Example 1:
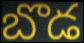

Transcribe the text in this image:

బొడ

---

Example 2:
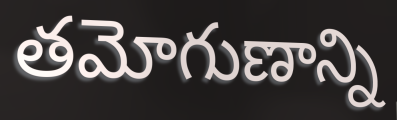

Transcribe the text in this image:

తమోగుణాన్ని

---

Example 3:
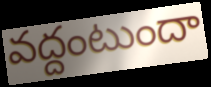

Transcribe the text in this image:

వద్దంటుందా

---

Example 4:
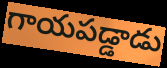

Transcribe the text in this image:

గాయపడ్డాడు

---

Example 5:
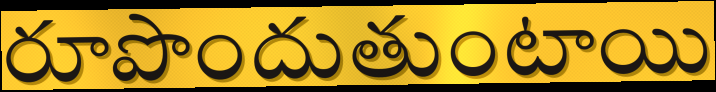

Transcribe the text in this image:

రూపొందుతుంటాయి